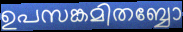
ഉപസങ്കമിതബ്ബോ